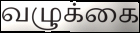
வழுக்கை